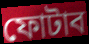
ফোটাব